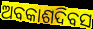
ଅବକାଶଦିବସ